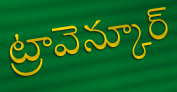
ట్రావెన్కూర్